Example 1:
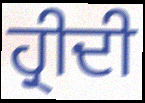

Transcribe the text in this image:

ਹ੍ਰੀਦੀ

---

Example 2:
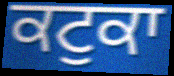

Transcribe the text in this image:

ਕਟੁਕਾ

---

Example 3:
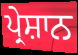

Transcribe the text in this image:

ਪ੍ਰੇਸ਼ਾਨ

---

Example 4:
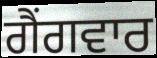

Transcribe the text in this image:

ਗੈਂਗਵਾਰ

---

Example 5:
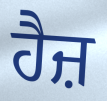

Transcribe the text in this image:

ਹੈਜ਼